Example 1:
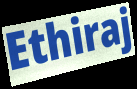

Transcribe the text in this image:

Ethiraj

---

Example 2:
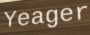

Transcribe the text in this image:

Yeager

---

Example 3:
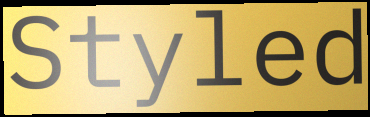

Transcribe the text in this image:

Styled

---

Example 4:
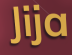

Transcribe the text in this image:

Jija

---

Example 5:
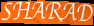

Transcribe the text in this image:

SHARAD